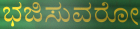
ಭಜಿಸುವರೋ